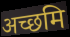
अच्छमि